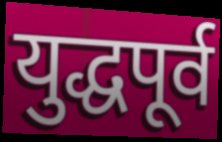
युद्धपूर्व